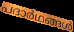
പദാർഥങ്ങൾ